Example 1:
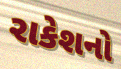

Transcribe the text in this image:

રાકેશનો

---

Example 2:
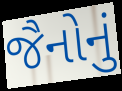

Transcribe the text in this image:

જૈનોનું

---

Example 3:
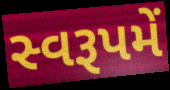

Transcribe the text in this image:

સ્વરૂપમેં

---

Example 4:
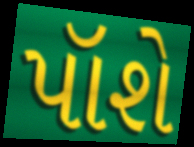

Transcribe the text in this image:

પૉશે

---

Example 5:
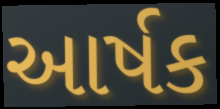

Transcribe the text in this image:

આર્ષક